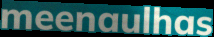
meenaulhas